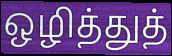
ஒழித்துத்